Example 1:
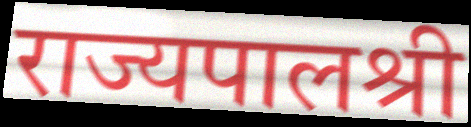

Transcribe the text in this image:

राज्यपालश्री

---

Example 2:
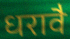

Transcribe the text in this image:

धरावै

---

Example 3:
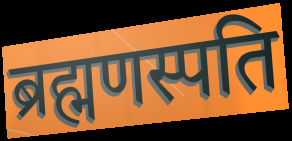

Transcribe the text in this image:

ब्रह्मणस्पति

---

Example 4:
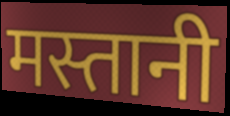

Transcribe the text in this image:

मस्‍तानी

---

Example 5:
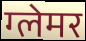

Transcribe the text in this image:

ग्लेमर